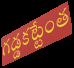
గడ్డకట్టేంత